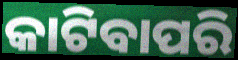
କାଟିବାପରି